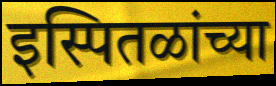
इस्पितळांच्या